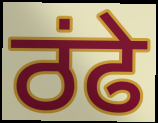
ठंढे